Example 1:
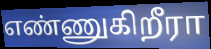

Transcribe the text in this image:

எண்ணுகிறீரா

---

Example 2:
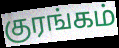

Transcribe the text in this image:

குரங்கம்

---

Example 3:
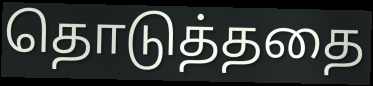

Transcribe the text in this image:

தொடுத்ததை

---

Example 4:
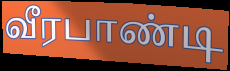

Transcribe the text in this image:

வீரபாண்டி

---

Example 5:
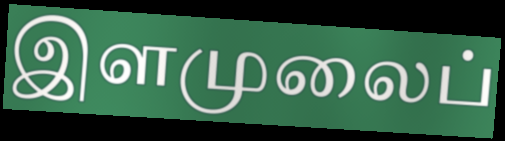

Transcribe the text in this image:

இளமுலைப்